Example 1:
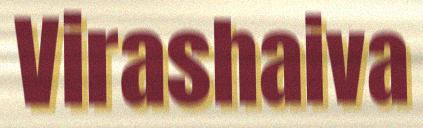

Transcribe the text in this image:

Virashaiva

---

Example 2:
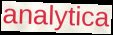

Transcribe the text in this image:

analytica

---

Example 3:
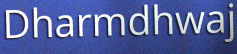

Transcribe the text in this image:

Dharmdhwaj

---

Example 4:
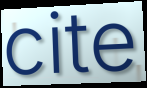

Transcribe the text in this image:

cite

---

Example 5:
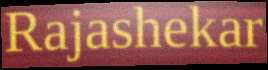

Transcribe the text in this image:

Rajashekar